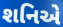
શનિએ